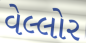
વેલ્લોર